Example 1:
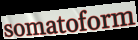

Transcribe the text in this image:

somatoform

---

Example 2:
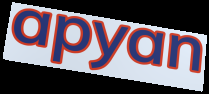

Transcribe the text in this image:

apyan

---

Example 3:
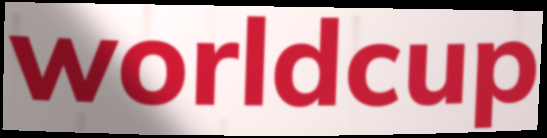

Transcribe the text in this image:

worldcup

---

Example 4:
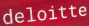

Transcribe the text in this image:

deloitte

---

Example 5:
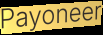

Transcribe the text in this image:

Payoneer